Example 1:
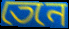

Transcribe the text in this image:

তেনে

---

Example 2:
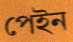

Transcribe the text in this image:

পেইন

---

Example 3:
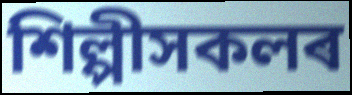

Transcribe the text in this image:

শিল্পীসকলৰ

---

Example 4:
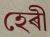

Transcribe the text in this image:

হেৰী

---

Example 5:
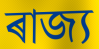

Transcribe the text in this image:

ৰাজ্য